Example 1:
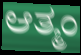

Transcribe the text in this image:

ಆತ್ಮಂ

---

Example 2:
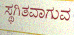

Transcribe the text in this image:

ಸ್ಥಗಿತವಾಗುವ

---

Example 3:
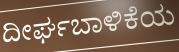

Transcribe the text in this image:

ದೀರ್ಘಬಾಳಿಕೆಯ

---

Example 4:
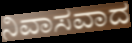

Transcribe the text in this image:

ನಿವಾಸವಾದ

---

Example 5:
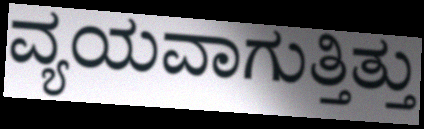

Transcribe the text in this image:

ವ್ಯಯವಾಗುತ್ತಿತ್ತು